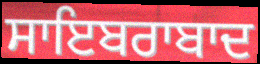
ਸਾਇਬਰਾਬਾਦ